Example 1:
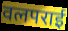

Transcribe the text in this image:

वलपराई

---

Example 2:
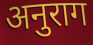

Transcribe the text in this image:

अनुराग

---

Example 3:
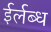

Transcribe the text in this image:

ईर्लब्ध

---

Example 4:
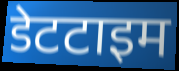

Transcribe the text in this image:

डेटटाइम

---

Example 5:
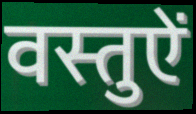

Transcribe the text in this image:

वस्तुऐं